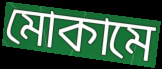
মোকামে